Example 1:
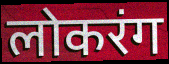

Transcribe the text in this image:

लोकरंग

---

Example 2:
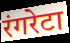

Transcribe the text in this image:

रंगरेटा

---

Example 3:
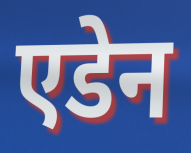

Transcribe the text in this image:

एडेन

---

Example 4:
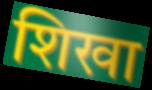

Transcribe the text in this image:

शिखा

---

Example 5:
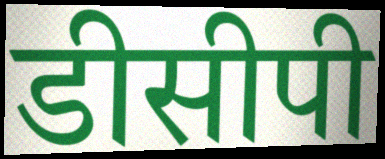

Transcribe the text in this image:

डीसीपी